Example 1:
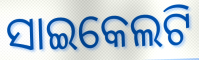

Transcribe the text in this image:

ସାଇକେଲଟି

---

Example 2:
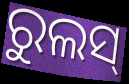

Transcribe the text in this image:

ରୁଲସ୍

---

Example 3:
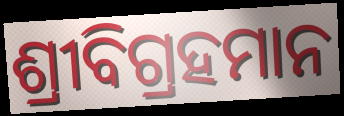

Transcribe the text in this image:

ଶ୍ରୀବିଗ୍ରହମାନ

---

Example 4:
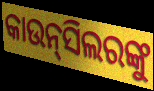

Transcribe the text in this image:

କାଉନ୍‌ସିଲରଙ୍କୁ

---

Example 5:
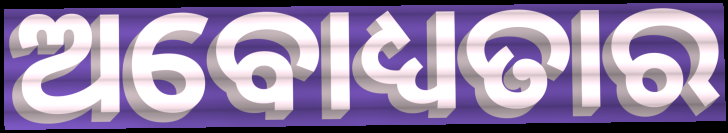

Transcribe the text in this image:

ଅବୋଧ୍ୟତାର